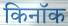
किनॉक